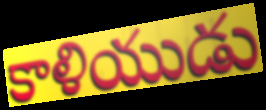
కాళియుడు